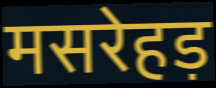
मसरेहड़